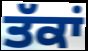
ਤੱਕਾਂ